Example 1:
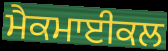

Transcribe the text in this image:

ਮੈਕਮਾਈਕਲ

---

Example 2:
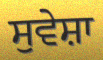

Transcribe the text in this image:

ਸੁਵੇਸ਼ਾ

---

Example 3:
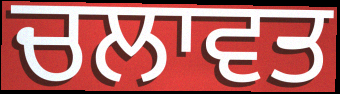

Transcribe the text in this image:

ਚਲਾਵਤ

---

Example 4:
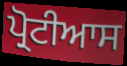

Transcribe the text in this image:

ਪ੍ਰੋਟੀਆਸ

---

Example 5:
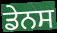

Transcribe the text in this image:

ਡੇਨਸ